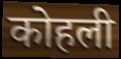
कोहली